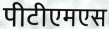
पीटीएमएस